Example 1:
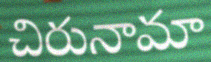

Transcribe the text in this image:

చిరునామా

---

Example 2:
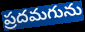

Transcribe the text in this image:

ప్రదమగును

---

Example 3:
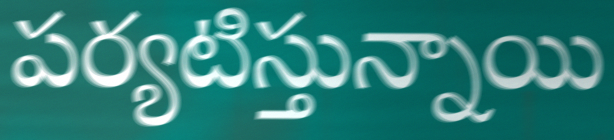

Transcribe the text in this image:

పర్యటిస్తున్నాయి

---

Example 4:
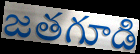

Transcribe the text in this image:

జతగూడి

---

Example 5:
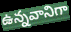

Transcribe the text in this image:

ఉన్నవానిగా